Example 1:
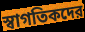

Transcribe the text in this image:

স্বাগতিকদের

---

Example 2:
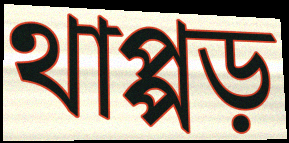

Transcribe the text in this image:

থাপ্পড়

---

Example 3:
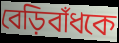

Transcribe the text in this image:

বেড়িবাঁধকে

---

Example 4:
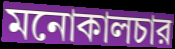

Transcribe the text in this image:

মনোকালচার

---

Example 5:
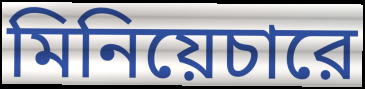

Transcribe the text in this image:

মিনিয়েচারে